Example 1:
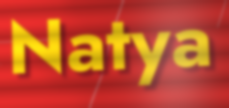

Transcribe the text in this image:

Natya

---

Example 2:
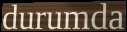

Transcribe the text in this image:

durumda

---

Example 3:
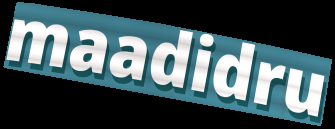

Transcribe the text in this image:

maadidru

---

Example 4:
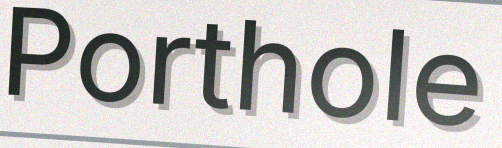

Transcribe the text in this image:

Porthole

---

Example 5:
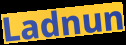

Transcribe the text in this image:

Ladnun